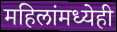
महिलांमध्येही